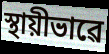
স্থায়ীভাৱে